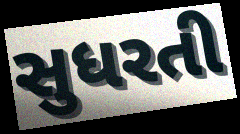
સુધરતી